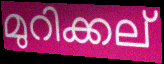
മുറിക്കല്